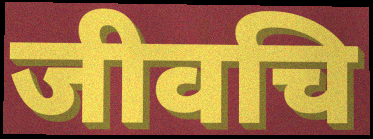
जीवचि